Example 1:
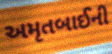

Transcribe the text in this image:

અમૃતબાઈની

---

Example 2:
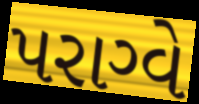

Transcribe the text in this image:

પરાગ્વે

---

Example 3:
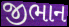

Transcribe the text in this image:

જીભાન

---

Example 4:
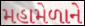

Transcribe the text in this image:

મહામેળાને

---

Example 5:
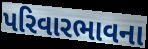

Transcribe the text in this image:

પરિવારભાવના